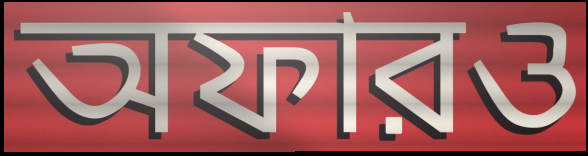
অফারও